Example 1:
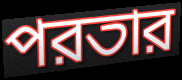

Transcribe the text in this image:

পরতার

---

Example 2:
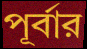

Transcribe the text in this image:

পূর্বার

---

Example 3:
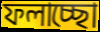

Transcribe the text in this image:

ফলাচ্ছো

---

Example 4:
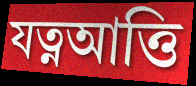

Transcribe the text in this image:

যত্নআত্তি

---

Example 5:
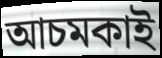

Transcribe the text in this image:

আচমকাই